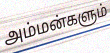
அம்மன்களும்